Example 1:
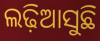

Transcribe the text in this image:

ଲଢ଼ିଆସୁଛି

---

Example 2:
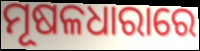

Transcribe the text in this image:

ମୂଷଳଧାରାରେ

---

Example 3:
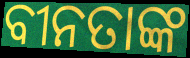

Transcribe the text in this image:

ବୀନତାଙ୍କ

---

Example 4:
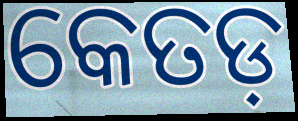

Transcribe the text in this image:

କେତଡ଼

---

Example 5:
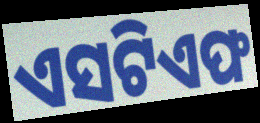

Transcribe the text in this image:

ଏସଟିଏଫ